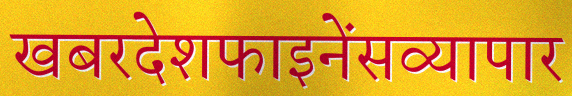
खबरदेशफाइनेंसव्यापार